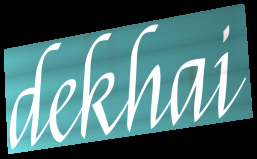
dekhai